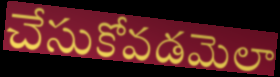
చేసుకోవడమెలా